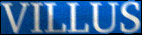
VILLUS